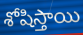
శోషిస్తాయి